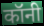
कॉनी